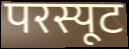
परस्यूट